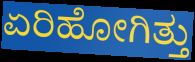
ಏರಿಹೋಗಿತ್ತು